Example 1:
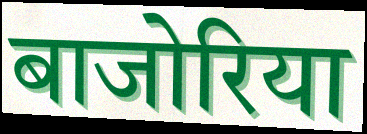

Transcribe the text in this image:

बाजोरिया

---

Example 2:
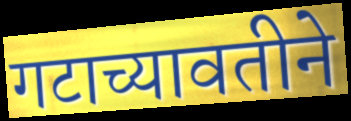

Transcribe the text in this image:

गटाच्यावतीने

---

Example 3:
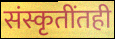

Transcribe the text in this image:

संस्कृतींतही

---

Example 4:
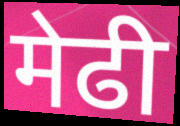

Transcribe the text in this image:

मेढी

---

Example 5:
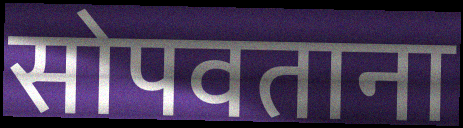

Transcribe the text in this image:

सोपवताना